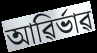
আৱিৰ্ভাৱ